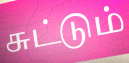
சுட்டும்